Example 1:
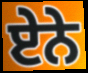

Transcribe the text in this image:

ਏੇਨੇ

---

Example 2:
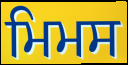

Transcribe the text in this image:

ਮਿਮਸ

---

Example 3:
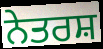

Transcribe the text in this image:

ਨੇਤਰਸ਼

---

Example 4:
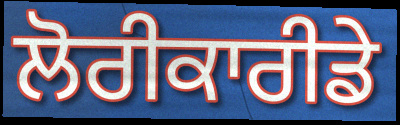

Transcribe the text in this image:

ਲੋਰੀਕਾਰੀਡੇ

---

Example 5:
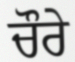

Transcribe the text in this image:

ਚੌਰੇ